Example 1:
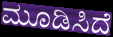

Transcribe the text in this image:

ಮೂಡಿಸಿದೆ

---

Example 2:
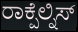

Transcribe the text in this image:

ರಾಕ್ಪೆಲ್ನಿಸ್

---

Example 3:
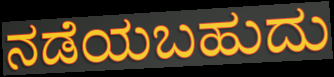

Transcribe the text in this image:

ನಡೆಯಬಹುದು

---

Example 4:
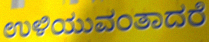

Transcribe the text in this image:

ಉಳಿಯುವಂತಾದರೆ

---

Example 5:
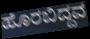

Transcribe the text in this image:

ಹೊರಬಿದ್ದವ